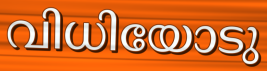
വിധിയോടു